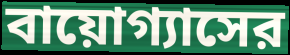
বায়োগ্যাসের